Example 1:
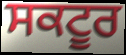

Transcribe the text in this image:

ਸਕਟੂਰ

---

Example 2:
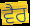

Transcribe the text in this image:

ਵੈਰ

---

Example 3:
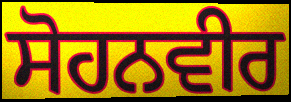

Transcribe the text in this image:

ਸੋਹਨਵੀਰ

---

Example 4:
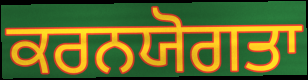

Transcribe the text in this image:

ਕਰਨਯੋਗਤਾ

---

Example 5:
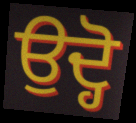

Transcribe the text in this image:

ਉਦ੍ਹੋ